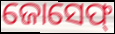
ଜୋସେଫ୍